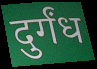
दुर्गंध